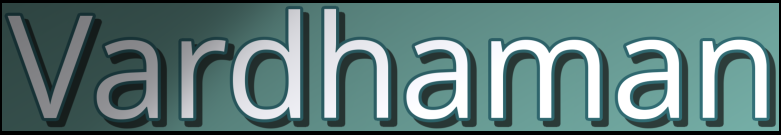
Vardhaman